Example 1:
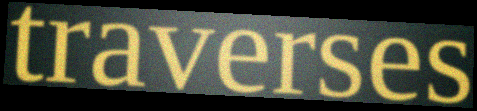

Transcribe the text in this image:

traverses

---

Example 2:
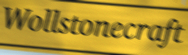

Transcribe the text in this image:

Wollstonecraft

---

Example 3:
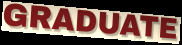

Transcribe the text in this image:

GRADUATE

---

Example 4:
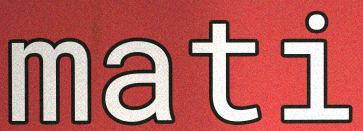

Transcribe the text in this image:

mati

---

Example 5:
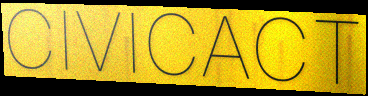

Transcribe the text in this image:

CIVICACT